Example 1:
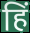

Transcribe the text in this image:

हिं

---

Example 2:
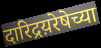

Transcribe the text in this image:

दारिद्रय़रेषेच्या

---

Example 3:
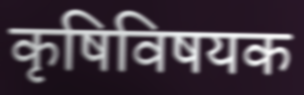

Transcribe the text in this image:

कृषिविषयक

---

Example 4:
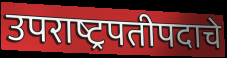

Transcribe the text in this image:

उपराष्ट्रपतीपदाचे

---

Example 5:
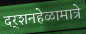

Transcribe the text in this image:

दर्शनहेळामात्रे